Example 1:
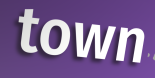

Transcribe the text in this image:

town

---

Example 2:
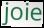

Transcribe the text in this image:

joie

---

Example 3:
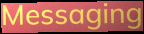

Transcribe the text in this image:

Messaging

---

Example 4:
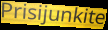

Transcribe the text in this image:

Prisijunkite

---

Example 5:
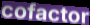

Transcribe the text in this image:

cofactor